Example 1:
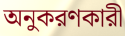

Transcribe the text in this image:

অনুকরণকারী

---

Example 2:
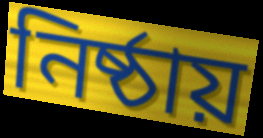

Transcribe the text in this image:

নিষ্ঠায়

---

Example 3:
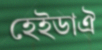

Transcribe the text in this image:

হেইডাঐ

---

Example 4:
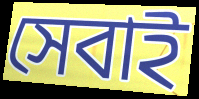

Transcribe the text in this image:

সেবাই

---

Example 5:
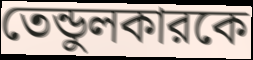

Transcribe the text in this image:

তেন্ডুলকারকে